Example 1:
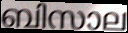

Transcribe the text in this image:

ബിസാല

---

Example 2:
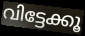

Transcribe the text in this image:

വിട്ടേക്കൂ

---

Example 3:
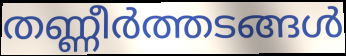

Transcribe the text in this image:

തണ്ണീർത്തടങ്ങൾ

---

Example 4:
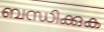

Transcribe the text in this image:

ബന്ധിക്കുക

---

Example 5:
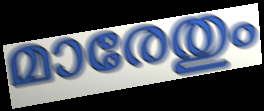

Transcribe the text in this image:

മാരേതും